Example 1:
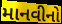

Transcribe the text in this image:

માનવીનો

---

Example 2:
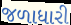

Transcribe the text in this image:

જળાધારી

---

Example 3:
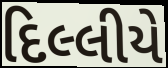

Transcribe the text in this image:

દિલ્લીયે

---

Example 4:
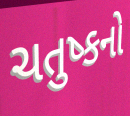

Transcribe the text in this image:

ચતુષ્કનો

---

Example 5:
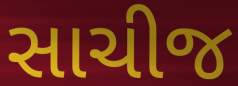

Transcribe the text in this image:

સાચીજ